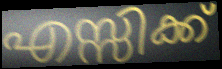
എസ്സിക്ക്